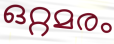
ഒറ്റമരം